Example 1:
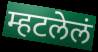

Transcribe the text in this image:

म्हटलेलं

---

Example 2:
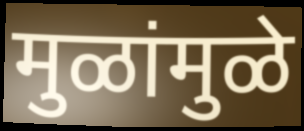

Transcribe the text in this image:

मुळांमुळे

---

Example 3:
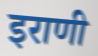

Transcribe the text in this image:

इराणी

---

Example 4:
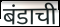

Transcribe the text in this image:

बंडाची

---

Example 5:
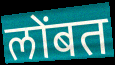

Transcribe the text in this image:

लोंबत